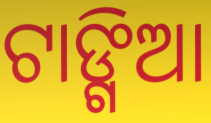
ଟାଙ୍ଗିଆ